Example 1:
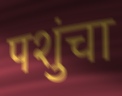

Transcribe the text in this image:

पशुंचा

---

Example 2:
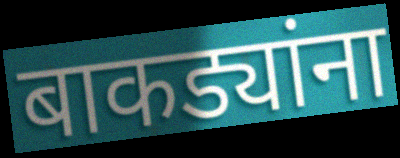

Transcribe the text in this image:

बाकड्यांना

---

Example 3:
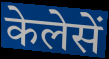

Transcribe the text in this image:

केलेसें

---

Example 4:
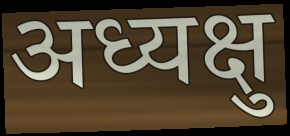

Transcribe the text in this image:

अध्यक्षु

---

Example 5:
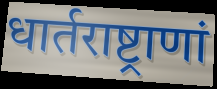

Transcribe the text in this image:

धार्तराष्ट्राणां